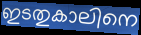
ഇടതുകാലിനെ